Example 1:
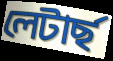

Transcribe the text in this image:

লেটাৰ্ছ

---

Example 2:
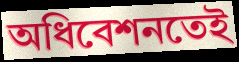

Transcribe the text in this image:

অধিবেশনতেই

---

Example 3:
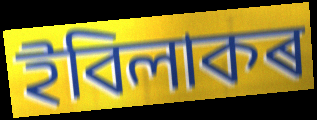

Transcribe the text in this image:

ইবিলাকৰ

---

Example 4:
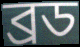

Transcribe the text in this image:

ব্ৰড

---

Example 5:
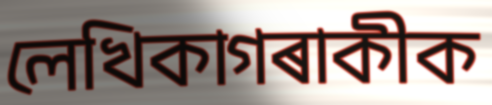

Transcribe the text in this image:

লেখিকাগৰাকীক